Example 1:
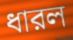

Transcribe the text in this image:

ধারল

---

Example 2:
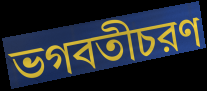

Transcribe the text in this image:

ভগবতীচরণ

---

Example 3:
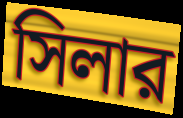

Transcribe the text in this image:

সিলার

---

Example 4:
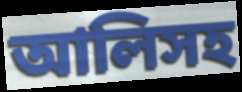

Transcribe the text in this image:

আলিসহ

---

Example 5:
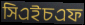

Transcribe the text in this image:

সিএইচএফ